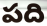
పది